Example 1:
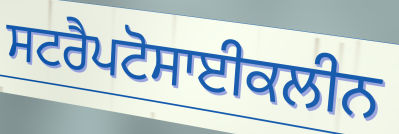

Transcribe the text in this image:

ਸਟਰੈਪਟੋਸਾਈਕਲੀਨ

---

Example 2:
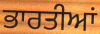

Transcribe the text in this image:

ਭਾਰਤੀਆਂ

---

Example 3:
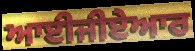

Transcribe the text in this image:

ਆਈਜੀਏਆਰ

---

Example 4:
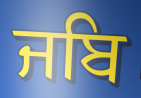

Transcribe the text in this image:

ਜਬਿ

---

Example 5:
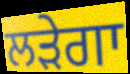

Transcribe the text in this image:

ਲੜੇਗਾ